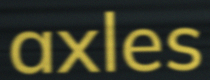
axles